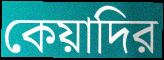
কেয়াদির